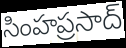
సింహప్రసాద్